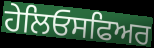
ਹੇਲਿਓਸਫਿਅਰ